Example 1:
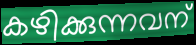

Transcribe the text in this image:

കഴിക്കുന്നവന്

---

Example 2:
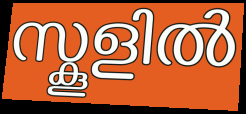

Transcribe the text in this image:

സ്കൂളിൽ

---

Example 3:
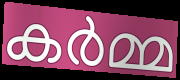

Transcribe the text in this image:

കർമ്മ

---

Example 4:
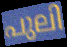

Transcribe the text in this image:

പുലി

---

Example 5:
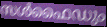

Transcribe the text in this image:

സൾഫൈഡും